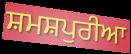
ਸ਼ਮਸ਼ਪੁਰੀਆ